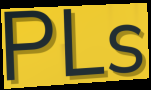
PLs